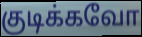
குடிக்கவோ